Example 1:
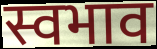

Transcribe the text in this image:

स्वभाव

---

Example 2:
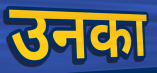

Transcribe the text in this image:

उनका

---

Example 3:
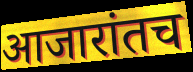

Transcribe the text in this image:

आजारांतच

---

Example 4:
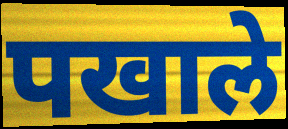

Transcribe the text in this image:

पखाले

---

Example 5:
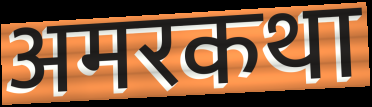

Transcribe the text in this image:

अमरकथा